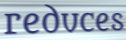
reduces